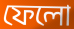
ফেলো